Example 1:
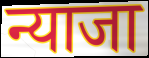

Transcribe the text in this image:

न्याजा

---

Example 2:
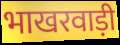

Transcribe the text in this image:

भाखरवाड़ी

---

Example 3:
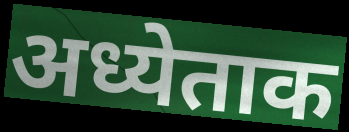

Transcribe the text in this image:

अध्येताक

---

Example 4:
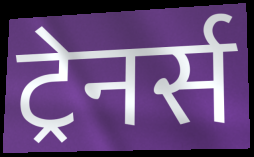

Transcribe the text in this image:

ट्रेनर्स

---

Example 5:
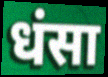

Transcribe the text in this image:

धंसा